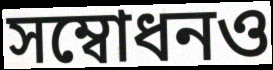
সম্বোধনও